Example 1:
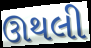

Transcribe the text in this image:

ઊથલી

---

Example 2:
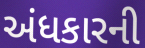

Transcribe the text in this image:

અંધકારની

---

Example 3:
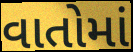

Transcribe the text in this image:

વાતોમાં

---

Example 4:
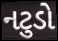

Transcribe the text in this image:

નટુડો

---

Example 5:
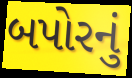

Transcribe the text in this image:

બપોરનું